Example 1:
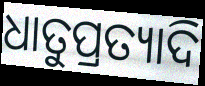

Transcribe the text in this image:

ଧାତୁପ୍ରତ୍ୟାଦି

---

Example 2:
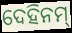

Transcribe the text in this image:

ଦେହିନମ୍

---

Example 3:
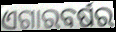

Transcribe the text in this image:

ଏଗାରବର୍ଷର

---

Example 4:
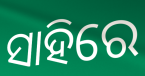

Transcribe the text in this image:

ସାହିରେ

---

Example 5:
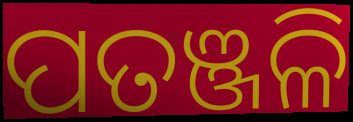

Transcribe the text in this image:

ପତଞ୍ଜଳି